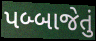
પબ્બાજેતું